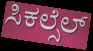
ಸಿಕಲ್ಸೆಲ್